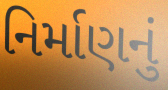
નિર્માણનું